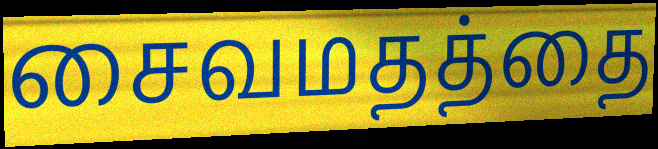
சைவமதத்தை